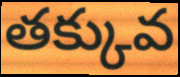
తక్కువ